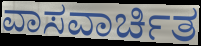
ವಾಸವಾರ್ಚಿತ